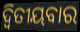
ଦ୍ୱିତୀୟବାର